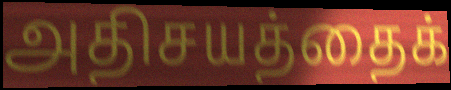
அதிசயத்தைக்